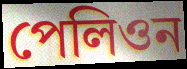
পেলিওন